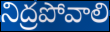
నిద్రపోవాలి